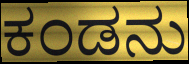
ಕಂಡನು